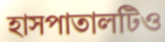
হাসপাতালটিও